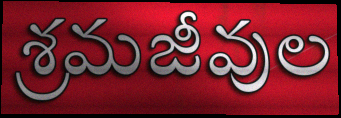
శ్రమజీవుల